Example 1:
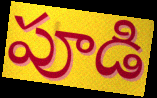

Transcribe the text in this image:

పూడి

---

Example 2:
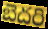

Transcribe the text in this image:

బెదరి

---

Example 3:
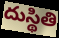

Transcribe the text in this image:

దుస్థితి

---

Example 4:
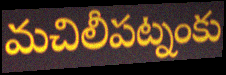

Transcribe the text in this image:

మచిలీపట్నంకు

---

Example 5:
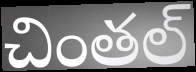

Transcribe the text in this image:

చింతల్